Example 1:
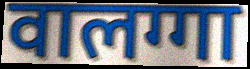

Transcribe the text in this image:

वालग्गा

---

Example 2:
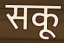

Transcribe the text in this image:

सकू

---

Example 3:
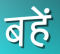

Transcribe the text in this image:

बहें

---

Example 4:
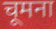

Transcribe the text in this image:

चूमना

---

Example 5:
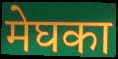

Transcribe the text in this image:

मेघका